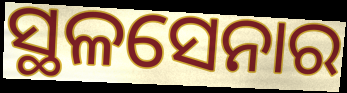
ସ୍ଥଳସେନାର